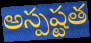
అస్పష్టత